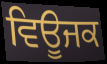
ਵਿਊਜਕ